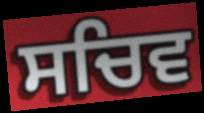
ਸਚਿਵ